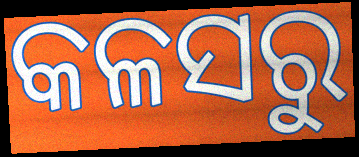
କଳସରୁ